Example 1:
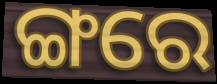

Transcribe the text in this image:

ଙ୍ଗରେ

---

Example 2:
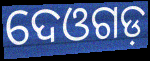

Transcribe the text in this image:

ଦେଓଗଡ଼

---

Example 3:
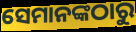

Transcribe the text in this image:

ସେମାନଙ୍କଠାରୁ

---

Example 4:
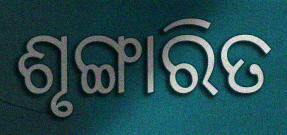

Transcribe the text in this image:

ଶୃଙ୍ଗାରିତ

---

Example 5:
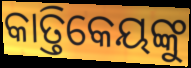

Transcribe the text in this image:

କାତ୍ତିକେୟଙ୍କୁ